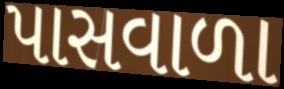
પાસવાળા